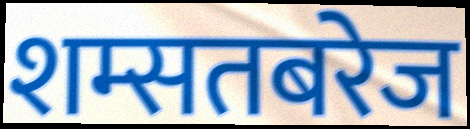
शम्सतबरेज